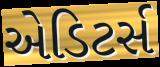
એડિટર્સ